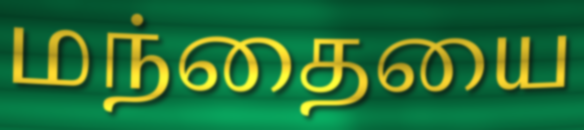
மந்தையை